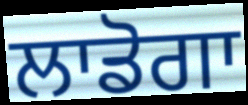
ਲਾਡੋਗਾ